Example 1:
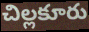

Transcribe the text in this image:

చిల్లకూరు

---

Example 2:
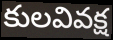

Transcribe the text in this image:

కులవివక్ష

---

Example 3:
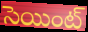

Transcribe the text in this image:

సెయింట్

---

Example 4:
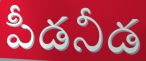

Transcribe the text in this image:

పీడనీడ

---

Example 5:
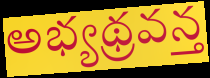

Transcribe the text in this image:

అభ్యథ్రవన్త